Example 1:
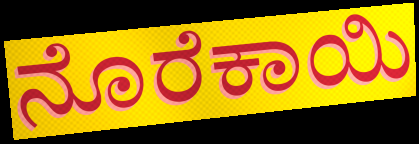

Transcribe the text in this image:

ನೊರೆಕಾಯಿ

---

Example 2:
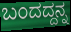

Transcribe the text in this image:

ಬಂದದ್ದನ್ನ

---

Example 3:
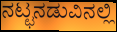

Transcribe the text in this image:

ನಟ್ಟನಡುವಿನಲ್ಲಿ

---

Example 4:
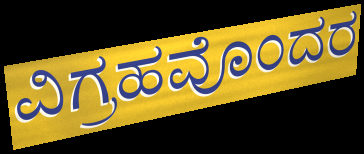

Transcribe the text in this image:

ವಿಗ್ರಹವೊಂದರ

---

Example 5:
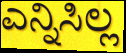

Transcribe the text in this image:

ಎನ್ನಿಸಿಲ್ಲ